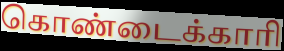
கொண்டைக்காரி